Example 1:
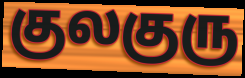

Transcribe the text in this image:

குலகுரு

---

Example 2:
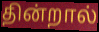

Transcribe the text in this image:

தின்றால்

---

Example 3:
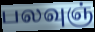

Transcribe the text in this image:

பலவுஞ்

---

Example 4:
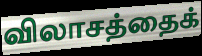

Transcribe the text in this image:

விலாசத்தைக்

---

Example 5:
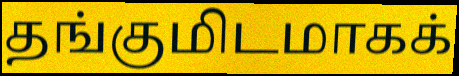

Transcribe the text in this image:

தங்குமிடமாகக்